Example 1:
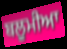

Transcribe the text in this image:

ਬਲੂਮੀਆ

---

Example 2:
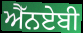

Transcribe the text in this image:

ਐੱਨਏਬੀ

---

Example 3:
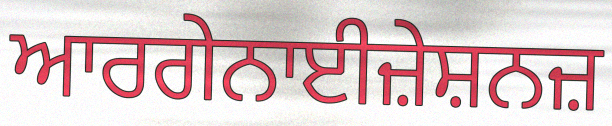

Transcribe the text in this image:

ਆਰਗੇਨਾਈਜ਼ੇਸ਼ਨਜ਼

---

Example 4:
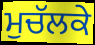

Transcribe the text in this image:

ਮੁਚੱਲਕੇ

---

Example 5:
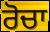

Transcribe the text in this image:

ਰੋਚਾ